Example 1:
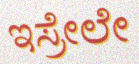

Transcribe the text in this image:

ಇಸ್ರೇಲೇ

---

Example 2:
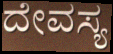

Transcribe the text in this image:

ದೇವಸ್ಯ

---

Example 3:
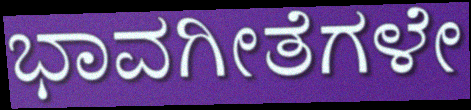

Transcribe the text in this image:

ಭಾವಗೀತೆಗಳೇ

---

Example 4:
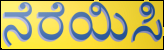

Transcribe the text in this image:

ನೆರೆಯಿಸಿ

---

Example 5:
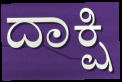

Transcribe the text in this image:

ದಾಕ್ಷಿ